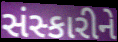
સંસ્કારીને